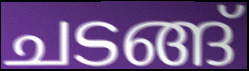
ചടങ്ങ്